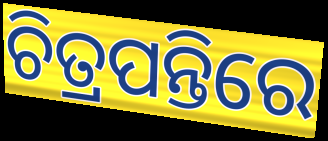
ଚିତ୍ରପନ୍ତିରେ